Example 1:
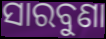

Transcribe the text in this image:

ସାରବୁଣା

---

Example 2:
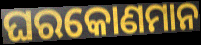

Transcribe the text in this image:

ଘରକୋଣମାନ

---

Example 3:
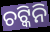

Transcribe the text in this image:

ଚଟ୍କିନି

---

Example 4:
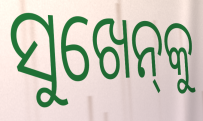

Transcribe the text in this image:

ସୁଖେନ୍‌କୁ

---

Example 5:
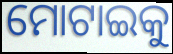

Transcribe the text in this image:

ମୋଟାଇକୁ